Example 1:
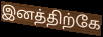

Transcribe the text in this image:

இனத்திற்கே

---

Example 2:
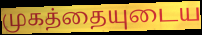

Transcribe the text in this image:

முகத்தையுடைய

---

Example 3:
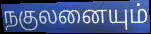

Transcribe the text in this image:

நகுலனையும்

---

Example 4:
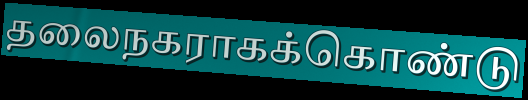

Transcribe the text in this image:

தலைநகராகக்கொண்டு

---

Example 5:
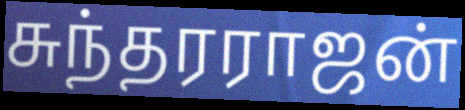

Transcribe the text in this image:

சுந்தரராஜன்